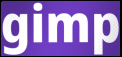
gimp